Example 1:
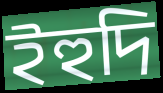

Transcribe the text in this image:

ইহুদি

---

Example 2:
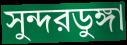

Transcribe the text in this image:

সুন্দরডুঙ্গা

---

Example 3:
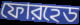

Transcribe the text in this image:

ফোরহেড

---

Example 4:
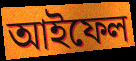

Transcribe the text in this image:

আইফেল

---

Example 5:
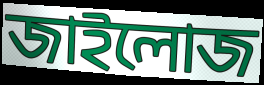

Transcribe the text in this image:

জাইলোজ